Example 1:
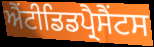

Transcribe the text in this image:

ਐਂਟੀਡਿਡਪ੍ਰੈਸੈਂਟਸ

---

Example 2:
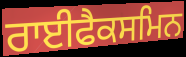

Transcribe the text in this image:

ਰਾਈਫੈਕਸਮਿਨ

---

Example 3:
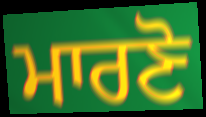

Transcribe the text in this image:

ਮਾਰਣੋ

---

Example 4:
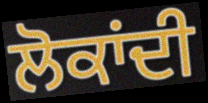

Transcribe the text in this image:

ਲੋਕਾਂਦੀ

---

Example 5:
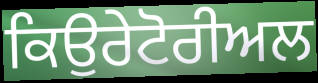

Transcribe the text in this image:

ਕਿਉਰੇਟੋਰੀਅਲ